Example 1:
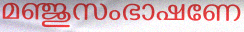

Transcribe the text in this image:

മഞ്ജുസംഭാഷണേ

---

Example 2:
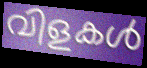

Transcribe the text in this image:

വിളകൾ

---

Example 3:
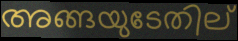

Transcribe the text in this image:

അങ്ങയുടേതില്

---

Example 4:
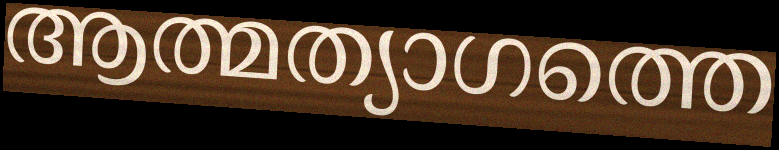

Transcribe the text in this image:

ആത്മത്യാഗത്തെ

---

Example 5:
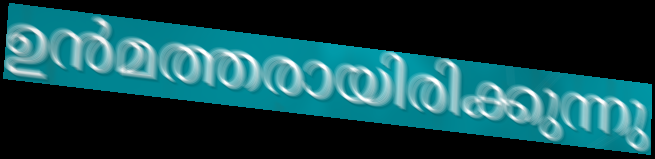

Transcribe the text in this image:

ഉൻമത്തരായിരിക്കുന്നു